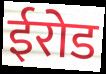
ईरोड